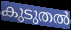
കുടുതൽ